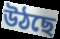
উঠছে